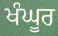
ਖੰਘੂਰ